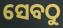
ସେବଠୁ